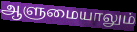
ஆளுமையாலும்